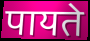
पायते